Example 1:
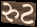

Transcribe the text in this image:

રુટ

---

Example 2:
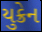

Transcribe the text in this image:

યુક્રેન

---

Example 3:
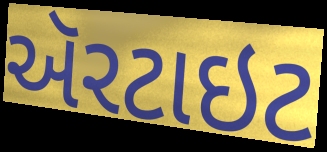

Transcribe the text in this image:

ઍરટાઇટ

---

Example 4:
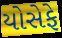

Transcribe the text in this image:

યોસેફે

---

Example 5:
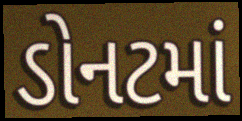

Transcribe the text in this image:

ડોનટમાં